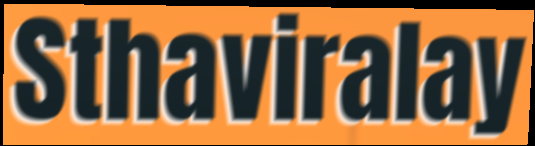
Sthaviralay